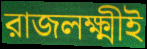
রাজলক্ষ্মীই